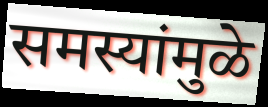
समस्यांमुळे